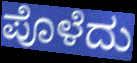
ಪೊಳೆದು